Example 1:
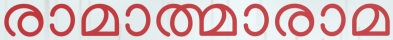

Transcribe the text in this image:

രാമാത്മാരാമ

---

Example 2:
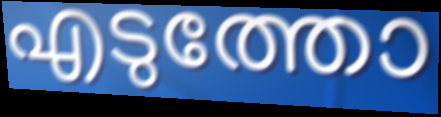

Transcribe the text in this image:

എടുത്തോ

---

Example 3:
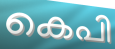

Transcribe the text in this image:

കെപി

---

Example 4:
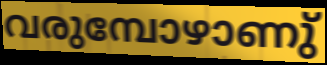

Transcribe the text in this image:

വരുമ്പോഴാണു്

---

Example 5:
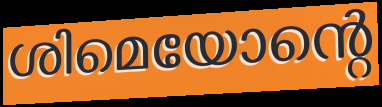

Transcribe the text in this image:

ശിമെയോന്റെ